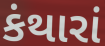
કંથારાં